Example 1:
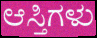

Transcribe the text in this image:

ಆಸ್ತಿಗಳು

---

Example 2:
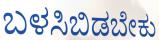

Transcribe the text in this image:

ಬಳಸಿಬಿಡಬೇಕು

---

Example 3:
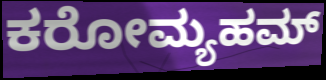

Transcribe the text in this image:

ಕರೋಮ್ಯಹಮ್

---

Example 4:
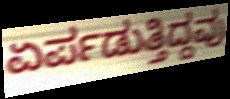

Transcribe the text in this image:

ಏರ್ಪಡುತ್ತಿದ್ದವು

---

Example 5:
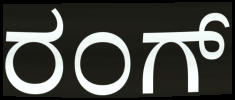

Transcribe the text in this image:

ರಂಗ್